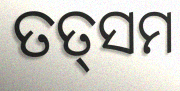
ତତ୍‍ସମ